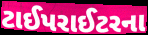
ટાઈપરાઈટરના